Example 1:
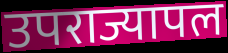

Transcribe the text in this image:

उपराज्यापल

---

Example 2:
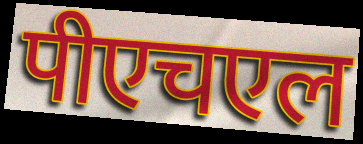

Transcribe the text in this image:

पीएचएल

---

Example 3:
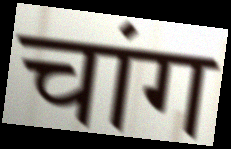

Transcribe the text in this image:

चांग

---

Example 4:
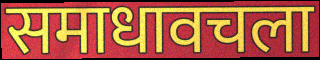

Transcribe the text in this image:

समाधावचला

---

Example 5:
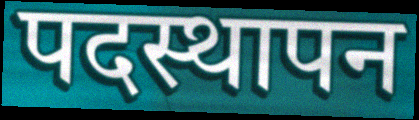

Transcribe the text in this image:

पदस्थापन